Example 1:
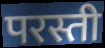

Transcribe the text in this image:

परस्ती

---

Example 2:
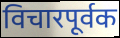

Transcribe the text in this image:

विचारपूर्वक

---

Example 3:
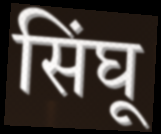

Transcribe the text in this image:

सिंघू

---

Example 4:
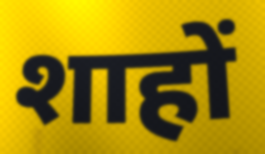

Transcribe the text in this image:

शाहों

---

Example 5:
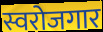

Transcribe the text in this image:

स्‍वरोजगार